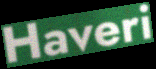
Haveri